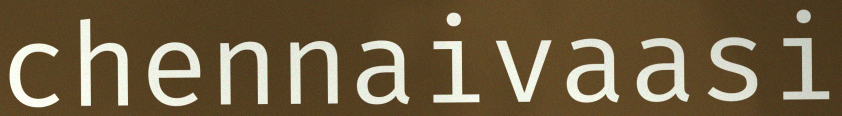
chennaivaasi